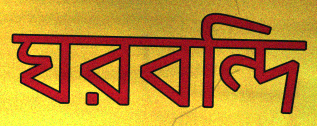
ঘরবন্দি